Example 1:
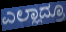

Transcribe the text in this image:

ಎಲ್ಲಾದ್ರೂ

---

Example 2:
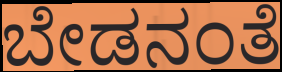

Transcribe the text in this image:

ಬೇಡನಂತೆ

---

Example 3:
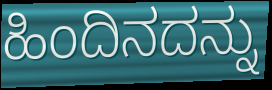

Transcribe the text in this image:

ಹಿಂದಿನದನ್ನು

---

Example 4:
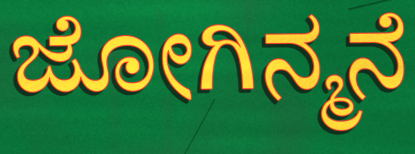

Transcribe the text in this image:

ಜೋಗಿನ್ಮನೆ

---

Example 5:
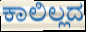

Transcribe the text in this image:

ಕಾಲಿಲ್ಲದ